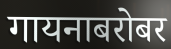
गायनाबरोबर